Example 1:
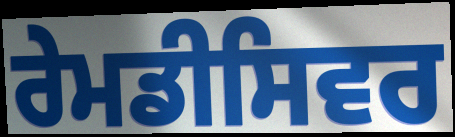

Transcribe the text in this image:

ਰੇਮਡੀਸਿਵਰ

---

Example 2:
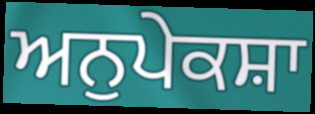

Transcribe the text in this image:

ਅਨੁਪੇਕਸ਼ਾ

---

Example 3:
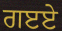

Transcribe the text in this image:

ਗੲਏ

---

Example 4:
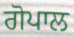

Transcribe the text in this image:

ਗੋਪਾਲ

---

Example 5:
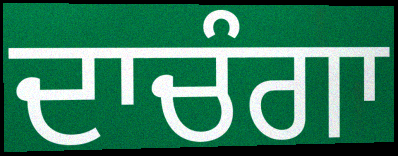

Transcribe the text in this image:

ਦਾਚੰਗਾ